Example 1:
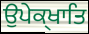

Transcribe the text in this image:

ਉਪੇਕ੍ਖਾਤਿ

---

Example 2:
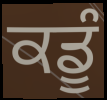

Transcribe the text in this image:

ਕਡੂੰ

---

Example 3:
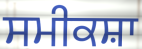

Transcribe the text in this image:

ਸਮੀਕਸ਼ਾ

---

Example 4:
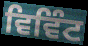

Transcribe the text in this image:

ਵਿਵਿੰਟ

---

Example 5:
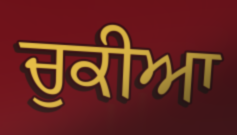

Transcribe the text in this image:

ਚੁਕੀਆ